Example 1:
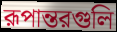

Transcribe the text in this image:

রূপান্তরগুলি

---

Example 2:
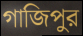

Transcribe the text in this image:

গাজিপুর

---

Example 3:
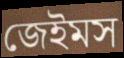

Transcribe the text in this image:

জেইমস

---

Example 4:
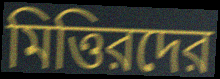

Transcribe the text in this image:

মিত্তিরদের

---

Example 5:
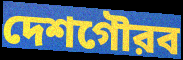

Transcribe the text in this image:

দেশগৌরব